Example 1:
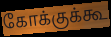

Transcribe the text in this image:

கோக்குக்கூ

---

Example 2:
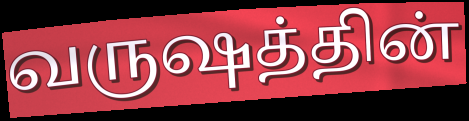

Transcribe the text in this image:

வருஷத்தின்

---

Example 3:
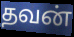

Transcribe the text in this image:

தவன்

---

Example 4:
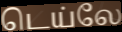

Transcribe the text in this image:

டெய்லே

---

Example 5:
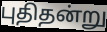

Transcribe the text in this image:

புதிதன்று